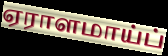
ஏராளமாய்ப்